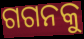
ଗଗନକୁ